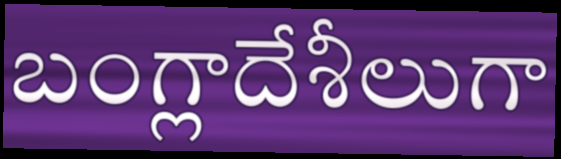
బంగ్లాదేశీలుగా